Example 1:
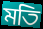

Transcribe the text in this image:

মতি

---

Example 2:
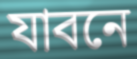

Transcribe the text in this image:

যাবনে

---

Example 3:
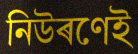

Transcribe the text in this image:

নিউৰণেই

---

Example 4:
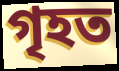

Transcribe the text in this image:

গৃহত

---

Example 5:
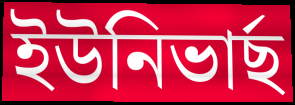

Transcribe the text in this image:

ইউনিভাৰ্ছ